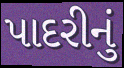
પાદરીનું